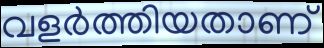
വളർത്തിയതാണ്